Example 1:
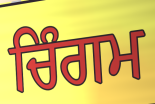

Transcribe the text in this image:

ਚਿੰਗਮ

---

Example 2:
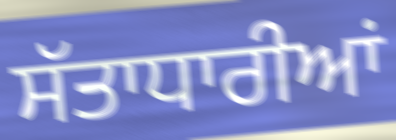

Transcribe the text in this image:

ਸੱਤਾਧਾਰੀਆਂ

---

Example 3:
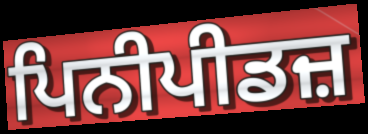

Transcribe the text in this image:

ਪਿਨੀਪੀਡਜ਼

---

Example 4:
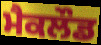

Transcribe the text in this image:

ਮੈਕਲੌਡ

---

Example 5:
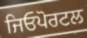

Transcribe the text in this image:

ਜਿਓਪੋਰਟਲ